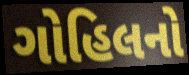
ગોહિલનો